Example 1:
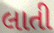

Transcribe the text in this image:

લાતી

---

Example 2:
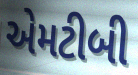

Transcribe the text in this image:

એમટીબી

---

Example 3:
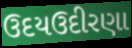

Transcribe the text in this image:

ઉદયઉદીરણા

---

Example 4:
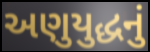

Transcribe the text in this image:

અણુયુદ્ધનું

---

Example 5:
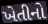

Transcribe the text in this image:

ખેતીનો